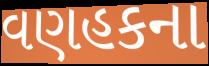
વણહકના